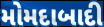
મોમદાબાદી